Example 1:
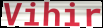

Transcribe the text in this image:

Vihir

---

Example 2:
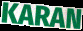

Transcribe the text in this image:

KARAN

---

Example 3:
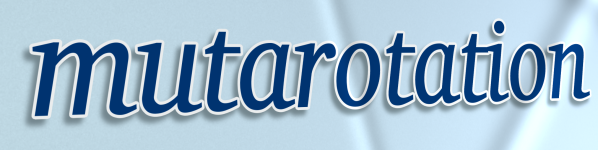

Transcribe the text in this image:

mutarotation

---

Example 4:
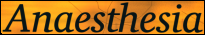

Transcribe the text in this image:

Anaesthesia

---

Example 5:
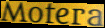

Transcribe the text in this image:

Motera